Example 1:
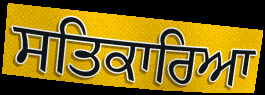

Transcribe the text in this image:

ਸਤਿਕਾਰਿਆ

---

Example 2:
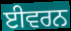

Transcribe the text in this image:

ਈਵਰਨ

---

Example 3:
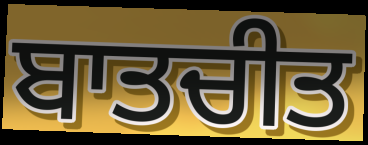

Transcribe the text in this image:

ਬਾਤਚੀਤ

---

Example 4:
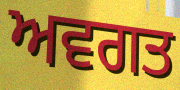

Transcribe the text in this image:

ਅਵਗਤ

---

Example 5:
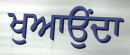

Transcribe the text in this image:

ਖੁਆਉਂਦਾ